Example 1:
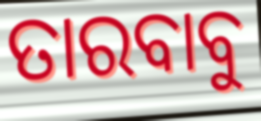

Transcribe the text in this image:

ତାରବାବୁ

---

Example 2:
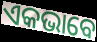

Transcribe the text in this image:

ଏକଭାବେ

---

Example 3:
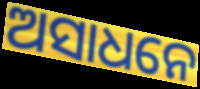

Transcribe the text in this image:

ଅସାଧନେ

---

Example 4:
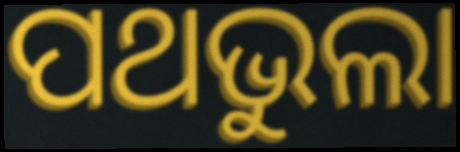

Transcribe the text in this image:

ପଥଭୁଲା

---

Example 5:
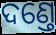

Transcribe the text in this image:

ଦଣ୍ତେ